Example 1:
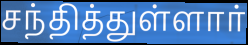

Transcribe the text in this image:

சந்தித்துள்ளார்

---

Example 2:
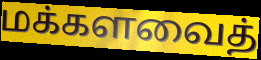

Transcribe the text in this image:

மக்களவைத்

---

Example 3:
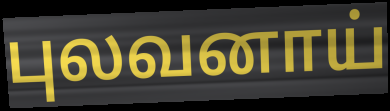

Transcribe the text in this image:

புலவனாய்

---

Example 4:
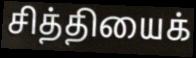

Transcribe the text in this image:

சித்தியைக்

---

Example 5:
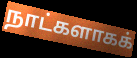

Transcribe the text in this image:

நாட்களாகக்